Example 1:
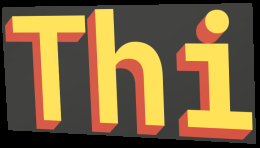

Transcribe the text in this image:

Thi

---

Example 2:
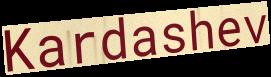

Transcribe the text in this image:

Kardashev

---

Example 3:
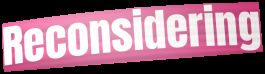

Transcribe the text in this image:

Reconsidering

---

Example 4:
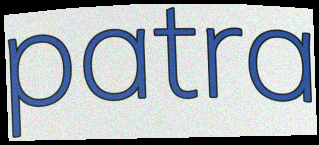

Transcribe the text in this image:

patra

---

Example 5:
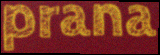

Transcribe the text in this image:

prana